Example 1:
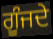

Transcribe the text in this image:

ਗੂੰਜਦੇ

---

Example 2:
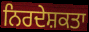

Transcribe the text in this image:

ਨਿਰਦੇਸ਼ਕਤਾ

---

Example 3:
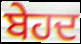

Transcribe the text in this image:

ਬੇਹਦ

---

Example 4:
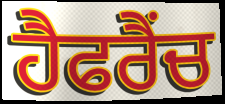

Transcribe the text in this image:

ਹੈਫਰੈਂਚ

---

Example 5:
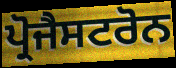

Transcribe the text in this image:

ਪ੍ਰੋਜੈਸਟਰੋਨ